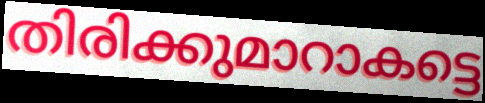
തിരിക്കുമാറാകട്ടെ